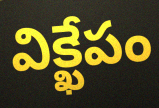
విక్ఖేపం